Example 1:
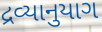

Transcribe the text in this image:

દ્રવ્યાનુયાગ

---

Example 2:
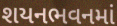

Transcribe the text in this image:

શયનભવનમાં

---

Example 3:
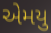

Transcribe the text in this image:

એમયુ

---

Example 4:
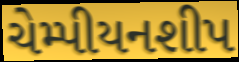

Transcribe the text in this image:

ચેમ્પીયનશીપ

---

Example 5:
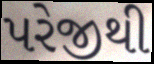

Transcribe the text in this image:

પરેજીથી